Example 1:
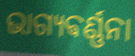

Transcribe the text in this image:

ଭାଗ୍ୟଵର୍ଣ୍ଣନା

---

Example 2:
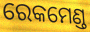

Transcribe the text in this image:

ରେକମେଣ୍ଡ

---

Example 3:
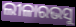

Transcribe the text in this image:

ଲୀଳାରଭସୁ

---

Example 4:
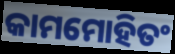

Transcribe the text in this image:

କାମମୋହିତଂ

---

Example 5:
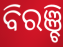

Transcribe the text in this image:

ବିରଞ୍ଚି